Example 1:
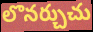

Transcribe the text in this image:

లొనర్చుచు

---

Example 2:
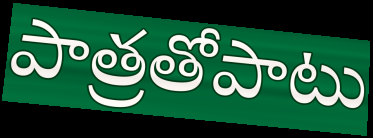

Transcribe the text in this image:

పాత్రతోపాటు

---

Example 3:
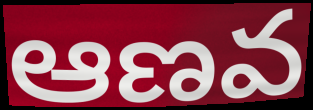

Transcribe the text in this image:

ఆణవ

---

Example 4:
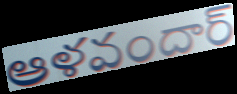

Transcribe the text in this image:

ఆళవందార్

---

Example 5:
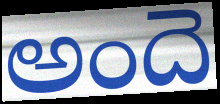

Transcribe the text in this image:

అందె